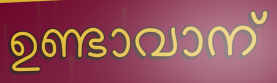
ഉണ്ടാവാന്